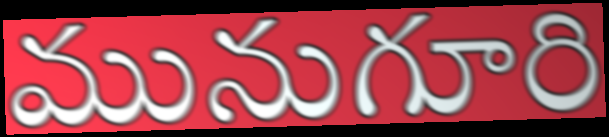
మునుగూరి